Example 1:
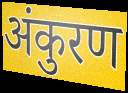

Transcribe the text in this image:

अंकुरण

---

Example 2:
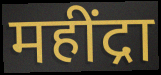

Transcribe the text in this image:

महींद्रा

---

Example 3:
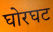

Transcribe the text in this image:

घोरघट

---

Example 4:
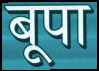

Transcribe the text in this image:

बूपा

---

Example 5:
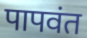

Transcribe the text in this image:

पापवंत